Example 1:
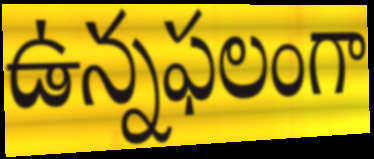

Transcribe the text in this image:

ఉన్నఫలంగా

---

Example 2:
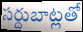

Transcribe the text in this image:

సర్దుబాట్లతో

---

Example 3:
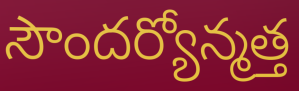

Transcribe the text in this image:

సౌందర్యోన్మత్త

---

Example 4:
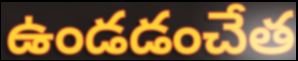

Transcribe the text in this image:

ఉండడంచేత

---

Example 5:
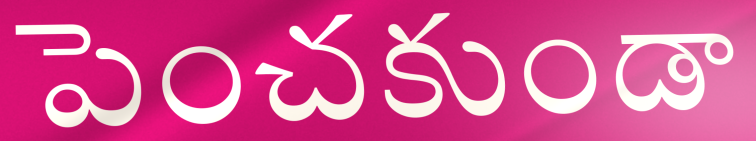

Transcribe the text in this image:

పెంచకుండా